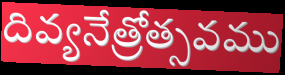
దివ్యనేత్రోత్సవము